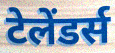
टेलेंडर्स